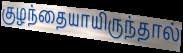
குழந்தையாயிருந்தால்